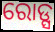
ରୋଡ୍ସ